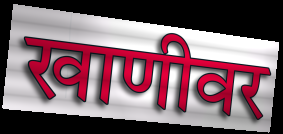
खाणीवर